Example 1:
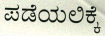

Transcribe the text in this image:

ಪಡೆಯಲಿಕ್ಕೆ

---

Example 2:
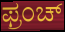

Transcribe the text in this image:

ಫ್ರಂಚ್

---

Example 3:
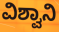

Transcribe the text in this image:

ವಿಶ್ವಾನಿ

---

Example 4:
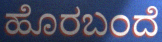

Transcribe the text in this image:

ಹೊರಬಂದೆ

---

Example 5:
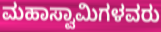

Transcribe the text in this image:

ಮಹಾಸ್ವಾಮಿಗಳವರು